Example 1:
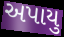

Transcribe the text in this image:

અપાયુ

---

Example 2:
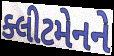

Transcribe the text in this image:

ક્લીટમેનને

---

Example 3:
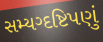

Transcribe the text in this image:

સમ્યગ્દષ્ટિપણું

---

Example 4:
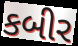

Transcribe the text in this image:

કબીર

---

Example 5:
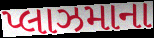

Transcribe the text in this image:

પ્લાઝમાના